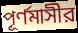
পূর্ণমাসীর